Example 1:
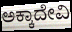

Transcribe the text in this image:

ಅಕ್ಕಾದೇವಿ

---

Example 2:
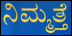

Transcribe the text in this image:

ನಿಮ್ಮತ್ತೆ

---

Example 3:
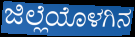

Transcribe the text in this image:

ಜಿಲ್ಲೆಯೊಳಗಿನ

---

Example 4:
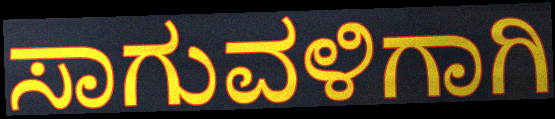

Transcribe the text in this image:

ಸಾಗುವಳಿಗಾಗಿ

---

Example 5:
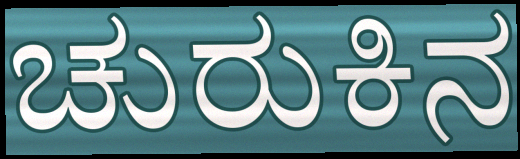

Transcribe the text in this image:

ಚುರುಕಿನ